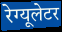
रेग्यूलेटर